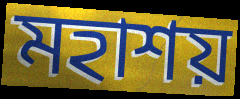
মহাশয়